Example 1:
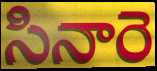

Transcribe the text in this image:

సినారె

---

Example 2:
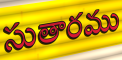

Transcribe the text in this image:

సుతారము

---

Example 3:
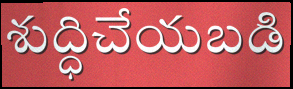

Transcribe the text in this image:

శుద్ధిచేయబడి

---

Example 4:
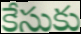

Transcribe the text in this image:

కేసుకు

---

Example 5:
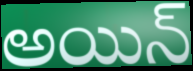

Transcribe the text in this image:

అయిన్